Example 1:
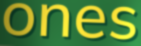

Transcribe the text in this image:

ones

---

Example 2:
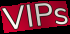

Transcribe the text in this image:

VIPs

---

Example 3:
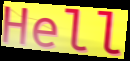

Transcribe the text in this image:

Hell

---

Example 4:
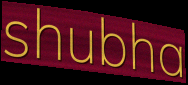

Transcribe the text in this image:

shubha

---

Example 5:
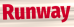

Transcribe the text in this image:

Runway